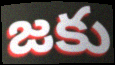
జకు